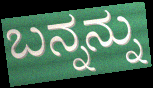
ಬನ್ನನ್ನು